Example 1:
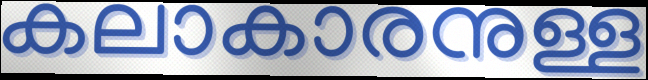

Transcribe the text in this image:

കലാകാരനുള്ള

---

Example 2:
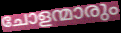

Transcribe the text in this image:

ചോളന്മാരും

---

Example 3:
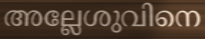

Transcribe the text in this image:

അല്ലേശുവിനെ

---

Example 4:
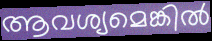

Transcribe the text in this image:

ആവശ്യമെങ്കിൽ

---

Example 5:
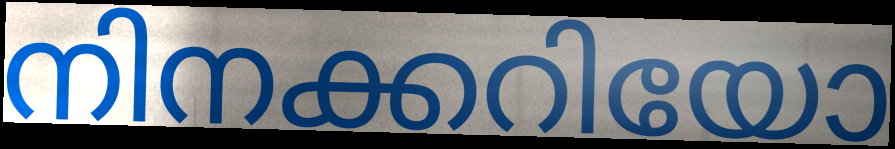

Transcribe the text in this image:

നിനക്കറിയോ